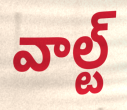
వాల్ట్